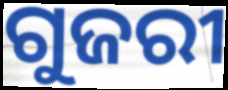
ଗୁଜରୀ